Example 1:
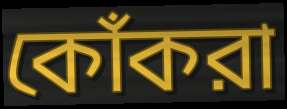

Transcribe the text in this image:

কোঁকরা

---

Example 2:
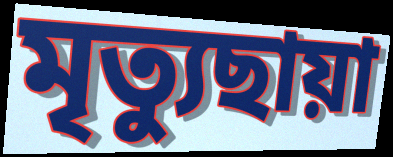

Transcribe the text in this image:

মৃত্যুছায়া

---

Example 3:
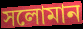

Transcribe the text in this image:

সলোমান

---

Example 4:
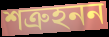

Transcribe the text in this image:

শত্রুহনন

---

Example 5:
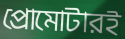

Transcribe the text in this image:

প্রোমোটারই